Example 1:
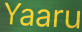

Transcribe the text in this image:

Yaaru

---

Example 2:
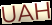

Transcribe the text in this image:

UAH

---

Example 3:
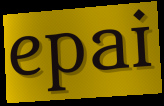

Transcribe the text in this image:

epai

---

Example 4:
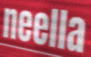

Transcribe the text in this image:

neella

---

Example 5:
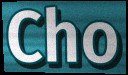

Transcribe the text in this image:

Cho